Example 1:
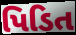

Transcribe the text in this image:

પિડિત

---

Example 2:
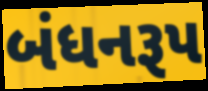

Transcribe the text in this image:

બંધનરૂપ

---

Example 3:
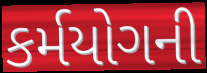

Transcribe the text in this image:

કર્મયોગની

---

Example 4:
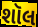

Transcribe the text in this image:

શૉલ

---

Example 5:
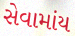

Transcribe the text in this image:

સેવામાંય